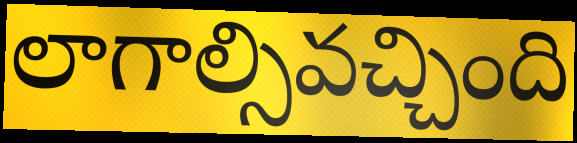
లాగాల్సివచ్చింది